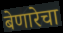
बेणारेचा